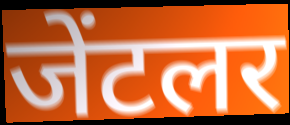
जेंटलर